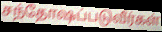
சந்தோஷப்படுவீர்கள்